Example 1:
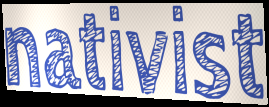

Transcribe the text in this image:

nativist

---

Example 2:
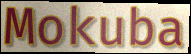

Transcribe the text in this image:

Mokuba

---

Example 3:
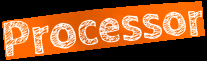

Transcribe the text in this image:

Processor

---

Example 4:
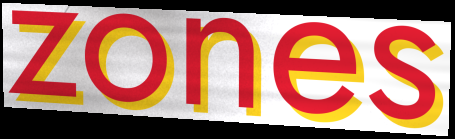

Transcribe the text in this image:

zones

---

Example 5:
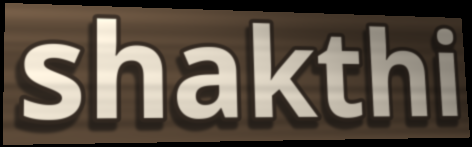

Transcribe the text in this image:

shakthi